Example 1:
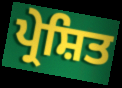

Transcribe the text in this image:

ਪ੍ਰੇਸ਼ਿਤ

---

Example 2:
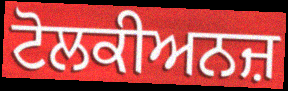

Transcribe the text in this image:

ਟੋਲਕੀਅਨਜ਼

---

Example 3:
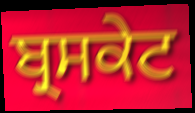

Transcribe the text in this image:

ਬ੍ਰਸਕੇਟ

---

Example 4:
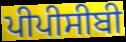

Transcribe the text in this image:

ਪੀਪੀਸੀਬੀ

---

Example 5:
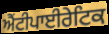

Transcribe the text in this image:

ਐਂਟੀਪਾਈਰੇਟਿਕ